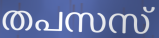
തപസസ്